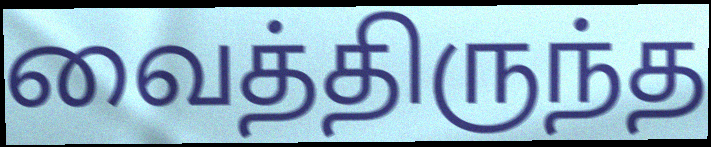
வைத்திருந்த